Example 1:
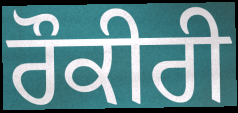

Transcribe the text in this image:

ਰੌਕੀਰੀ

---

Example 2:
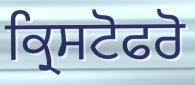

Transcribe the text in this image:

ਕ੍ਰਿਸਟੋਫਰੋ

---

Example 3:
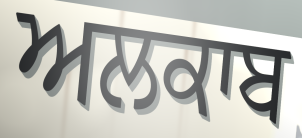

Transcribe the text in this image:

ਅਲਕਾਬ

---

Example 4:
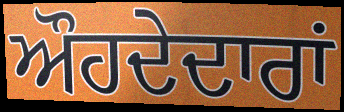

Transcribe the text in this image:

ਔਹਦੇਦਾਰਾਂ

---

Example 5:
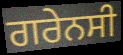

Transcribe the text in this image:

ਗਰੇਨਸੀ